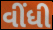
વીંધી